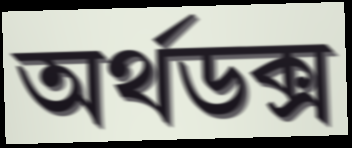
অৰ্থডক্স